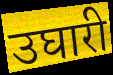
उघारी